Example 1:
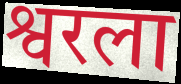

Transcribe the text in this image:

श्वरला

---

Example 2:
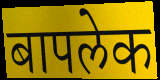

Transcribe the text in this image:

बापलेक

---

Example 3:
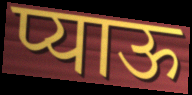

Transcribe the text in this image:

प्याऊ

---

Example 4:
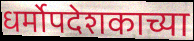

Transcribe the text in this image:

धर्मोपदेशकाच्या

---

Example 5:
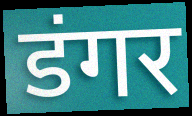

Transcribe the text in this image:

डंगर